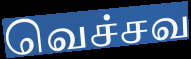
வெச்சவ